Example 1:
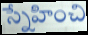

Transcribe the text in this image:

స్నేహించి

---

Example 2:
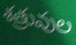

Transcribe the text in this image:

శత్రువుల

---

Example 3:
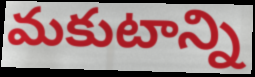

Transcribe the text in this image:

మకుటాన్ని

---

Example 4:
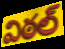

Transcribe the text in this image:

విఠల్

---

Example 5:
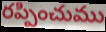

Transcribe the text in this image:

రప్పించుము